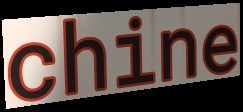
chine